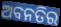
ଅବନତିର